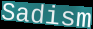
Sadism